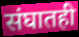
संघातही